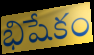
భిషేకం